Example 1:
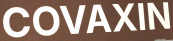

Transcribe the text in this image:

COVAXIN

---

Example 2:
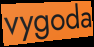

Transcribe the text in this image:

vygoda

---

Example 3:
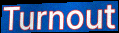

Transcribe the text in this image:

Turnout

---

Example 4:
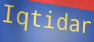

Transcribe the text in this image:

Iqtidar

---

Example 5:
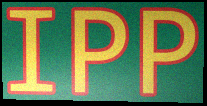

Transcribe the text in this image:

IPP